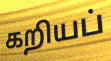
கறியப்